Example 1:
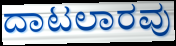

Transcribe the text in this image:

ದಾಟಲಾರವು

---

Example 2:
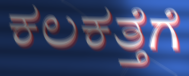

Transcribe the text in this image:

ಕಲಕತ್ತೆಗೆ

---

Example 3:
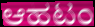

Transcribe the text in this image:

ಆಹಟಂ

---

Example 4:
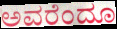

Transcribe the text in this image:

ಅವರೆಂದೂ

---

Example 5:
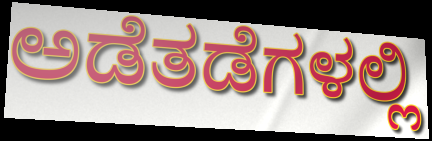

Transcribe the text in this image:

ಅಡೆತಡೆಗಳಲ್ಲಿ